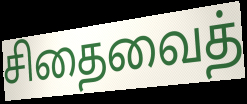
சிதைவைத்